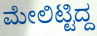
ಮೇಲಿಟ್ಟಿದ್ದ